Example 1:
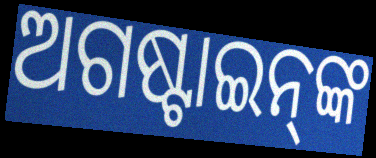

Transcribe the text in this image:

ଅଗଷ୍ଟାଇନ୍‌ଙ୍କ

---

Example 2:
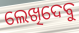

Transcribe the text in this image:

ଲେଖିଦେବୁ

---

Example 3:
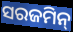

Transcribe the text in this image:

ସରଜମିନ୍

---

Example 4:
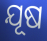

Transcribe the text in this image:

ଯୂଷ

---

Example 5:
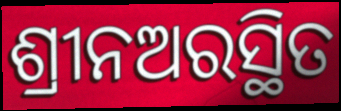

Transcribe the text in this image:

ଶ୍ରୀନଅରସ୍ଥିତ